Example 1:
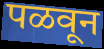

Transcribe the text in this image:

पळवून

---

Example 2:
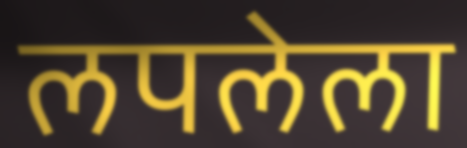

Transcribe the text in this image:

लपलेला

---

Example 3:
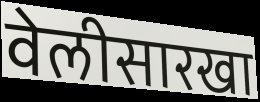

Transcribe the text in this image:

वेलीसारखा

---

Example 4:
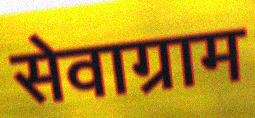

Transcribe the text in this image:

सेवाग्राम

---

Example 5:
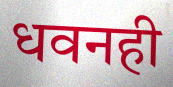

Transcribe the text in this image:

धवनही